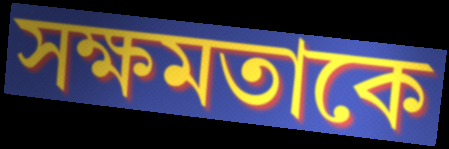
সক্ষমতাকে